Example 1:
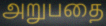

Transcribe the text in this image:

அறுபதை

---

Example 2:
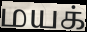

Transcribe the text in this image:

மயக்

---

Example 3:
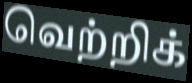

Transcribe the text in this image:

வெற்றிக்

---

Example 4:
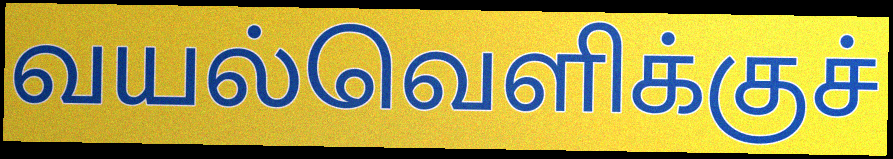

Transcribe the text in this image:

வயல்வெளிக்குச்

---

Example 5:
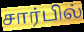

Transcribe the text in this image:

சார்பில்